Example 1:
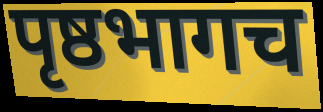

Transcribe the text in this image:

पृष्ठभागच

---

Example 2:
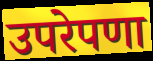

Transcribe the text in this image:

उपरेपणा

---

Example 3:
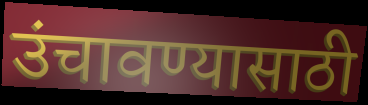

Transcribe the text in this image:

उंचावण्यासाठी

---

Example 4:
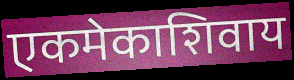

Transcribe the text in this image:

एकमेकाशिवाय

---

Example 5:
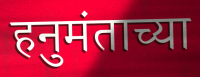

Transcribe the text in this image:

हनुमंताच्या